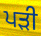
ਪਡ਼ੀ